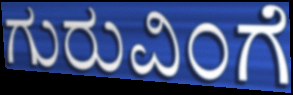
ಗುರುವಿಂಗೆ